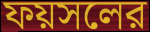
ফয়সলের